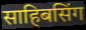
साहिबसिंग